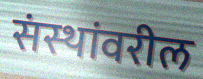
संस्थांवरील